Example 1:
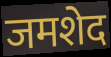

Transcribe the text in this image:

जमशेद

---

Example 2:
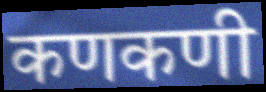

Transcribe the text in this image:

कणकणी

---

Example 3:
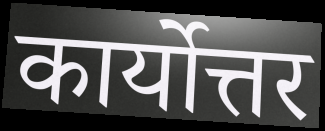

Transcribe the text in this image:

कार्योत्तर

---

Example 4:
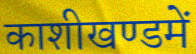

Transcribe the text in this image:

काशीखण्डमें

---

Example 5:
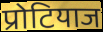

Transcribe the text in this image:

प्रोटियाज